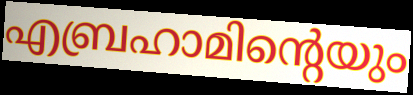
എബ്രഹാമിന്റെയും